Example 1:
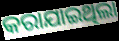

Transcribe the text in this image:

କରାଯାଇଥିଲା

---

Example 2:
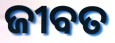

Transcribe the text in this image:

ଜୀବତ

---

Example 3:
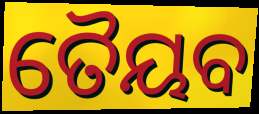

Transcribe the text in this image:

ତୈୟବ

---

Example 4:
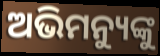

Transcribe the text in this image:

ଅଭିମନ୍ୟୁଙ୍କୁ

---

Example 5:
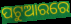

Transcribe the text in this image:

ପଟୁଆରରେ